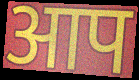
आप